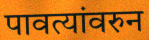
पावत्यांवरुन